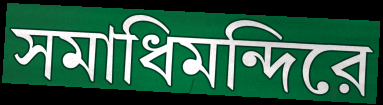
সমাধিমন্দিরে